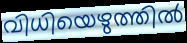
വിധിയെഴുത്തിൽ